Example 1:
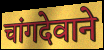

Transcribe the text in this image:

चांगदेवाने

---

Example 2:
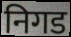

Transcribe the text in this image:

निगड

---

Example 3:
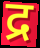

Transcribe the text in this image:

द्र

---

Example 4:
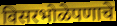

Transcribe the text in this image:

विसरभोळेपणाचे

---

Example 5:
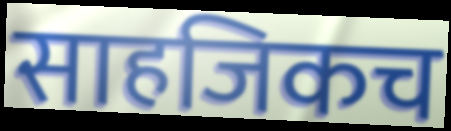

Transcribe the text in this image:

साहजिकच